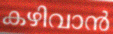
കഴിവാൻ